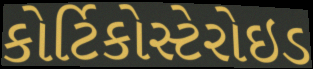
કોર્ટિકોસ્ટેરોઇડ